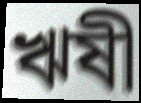
ঋষী